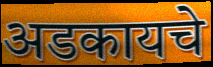
अडकायचे